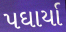
પઘાર્યા